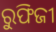
ରୁଫିଜୀ